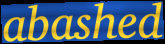
abashed